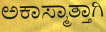
ಅಕಾಸ್ಮಾತ್ತಾಗಿ